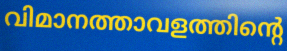
വിമാനത്താവളത്തിന്റെ